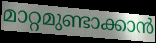
മാറ്റമുണ്ടാക്കാൻ